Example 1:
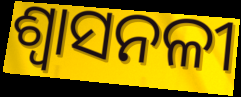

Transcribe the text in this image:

ଶ୍ଵାସନଳୀ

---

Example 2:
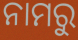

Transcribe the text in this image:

ନାମରୁ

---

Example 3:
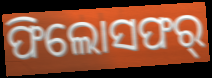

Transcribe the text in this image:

ଫିଲୋସଫର୍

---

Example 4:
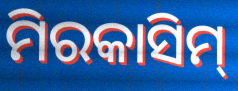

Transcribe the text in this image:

ମିରକାସିମ୍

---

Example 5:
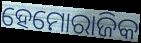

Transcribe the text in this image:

ହେମୋରାଜିକ